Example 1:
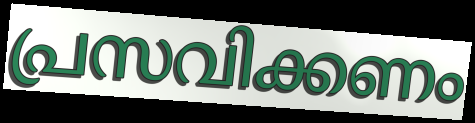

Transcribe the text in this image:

പ്രസവിക്കണം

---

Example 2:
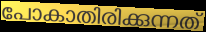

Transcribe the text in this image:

പോകാതിരിക്കുന്നത്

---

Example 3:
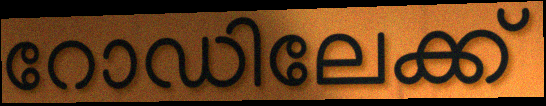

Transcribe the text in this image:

റോഡിലേക്ക്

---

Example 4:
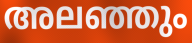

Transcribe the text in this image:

അലഞ്ഞും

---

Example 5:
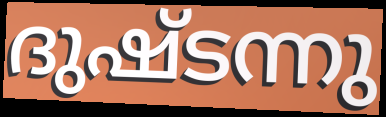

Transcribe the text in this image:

ദുഷ്ടന്നു